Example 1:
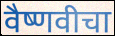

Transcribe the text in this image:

वैष्णवीचा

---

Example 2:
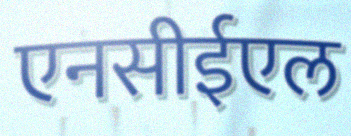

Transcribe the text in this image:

एनसीईएल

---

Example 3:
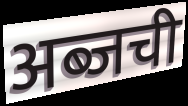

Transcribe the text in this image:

अब्जची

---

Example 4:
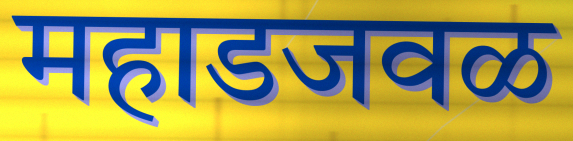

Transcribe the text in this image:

महाडजवळ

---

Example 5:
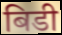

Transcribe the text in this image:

बिडी